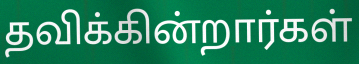
தவிக்கின்றார்கள்